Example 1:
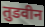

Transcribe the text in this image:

तुडवीन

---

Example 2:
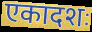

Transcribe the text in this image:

एकादशः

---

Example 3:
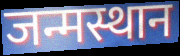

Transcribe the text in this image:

जन्मस्थान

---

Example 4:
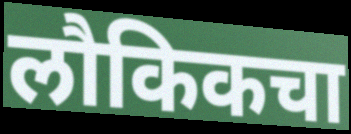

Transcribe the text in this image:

लौकिकचा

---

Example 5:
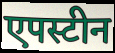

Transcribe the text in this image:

एपस्टीन